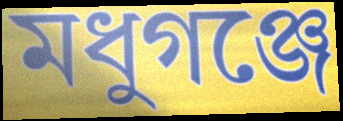
মধুগঞ্জে